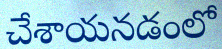
చేశాయనడంలో